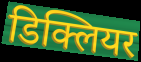
डिक्लियर